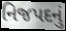
નિજપદનું